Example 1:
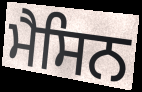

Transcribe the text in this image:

ਮੈਸਿਨ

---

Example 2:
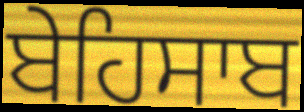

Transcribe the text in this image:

ਬੇਹਿਸਾਬ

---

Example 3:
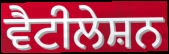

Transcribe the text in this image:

ਵੈਟੀਲੇਸ਼ਨ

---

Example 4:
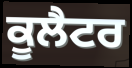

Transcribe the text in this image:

ਕੂਲੈਟਰ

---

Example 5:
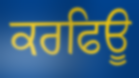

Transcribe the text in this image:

ਕਰਫਿਊ